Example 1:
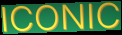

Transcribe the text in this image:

ICONIC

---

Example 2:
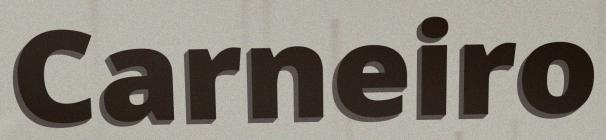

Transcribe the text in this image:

Carneiro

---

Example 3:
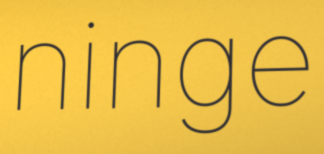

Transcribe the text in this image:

ninge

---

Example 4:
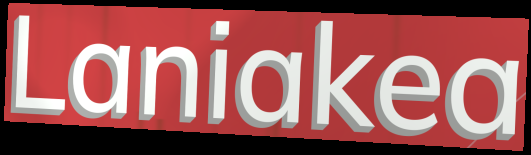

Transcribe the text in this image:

Laniakea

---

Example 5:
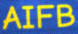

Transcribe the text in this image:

AIFB